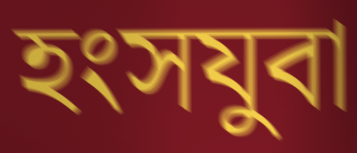
হংসযুবা